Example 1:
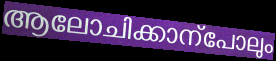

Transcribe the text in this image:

ആലോചിക്കാന്പോലും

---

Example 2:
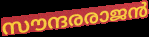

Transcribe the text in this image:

സൗന്ദരരാജൻ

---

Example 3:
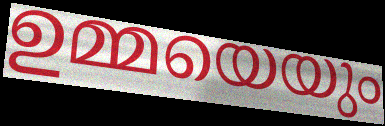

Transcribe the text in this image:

ഉമ്മയെയും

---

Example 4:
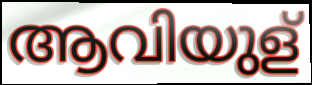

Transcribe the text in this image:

ആവിയുള്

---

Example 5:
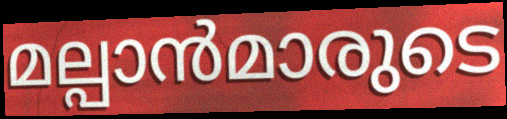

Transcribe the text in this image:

മല്പാൻമാരുടെ